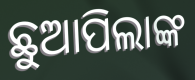
ଛୁଆପିଲାଙ୍କ